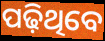
ପଢ଼ିଥିବେ